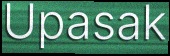
Upasak